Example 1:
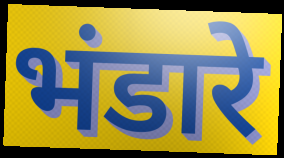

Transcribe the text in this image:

भंडारे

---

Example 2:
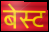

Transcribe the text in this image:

बेस्ट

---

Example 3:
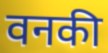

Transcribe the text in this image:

वनकी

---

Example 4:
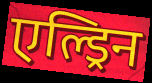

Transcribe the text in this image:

एल्ड्रिन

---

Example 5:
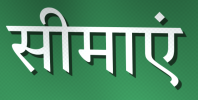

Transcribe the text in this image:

सीमाएं